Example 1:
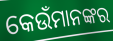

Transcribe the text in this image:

କେଉଁମାନଙ୍କର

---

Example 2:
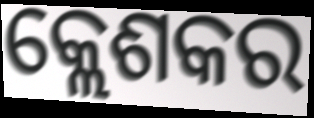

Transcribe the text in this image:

କ୍ଲେଶକର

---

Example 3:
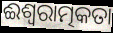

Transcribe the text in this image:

ଈଶ୍ଵରାତ୍ମକତା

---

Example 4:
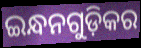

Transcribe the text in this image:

ଇନ୍ଧନଗୁଡ଼ିକର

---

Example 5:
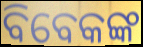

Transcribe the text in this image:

ବିବେକଙ୍କ